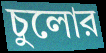
চুলোর